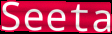
Seeta